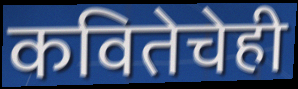
कवितेचेही